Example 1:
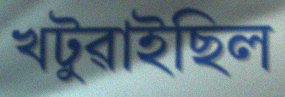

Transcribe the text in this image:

খটুৱাইছিল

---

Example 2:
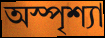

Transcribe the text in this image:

অস্পৃশ্যা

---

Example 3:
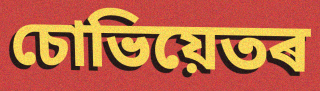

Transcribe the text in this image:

চোভিয়েতৰ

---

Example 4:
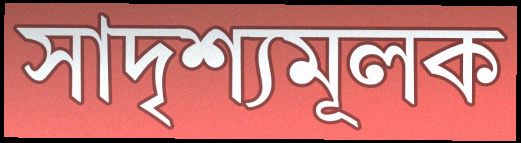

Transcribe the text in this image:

সাদৃশ্যমূলক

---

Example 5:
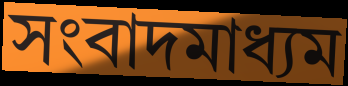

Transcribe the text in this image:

সংবাদমাধ্যম